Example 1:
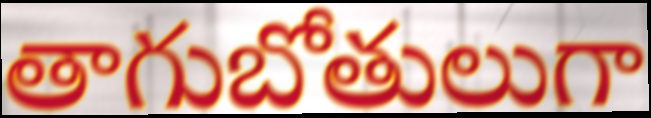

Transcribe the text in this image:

తాగుబోతులుగా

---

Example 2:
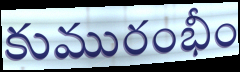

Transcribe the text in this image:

కుమురంభీం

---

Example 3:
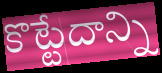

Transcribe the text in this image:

కొట్టేదాన్ని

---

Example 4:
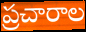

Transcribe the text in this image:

ప్రచారాల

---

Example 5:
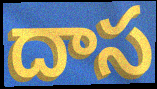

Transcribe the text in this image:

దాస